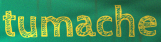
tumache